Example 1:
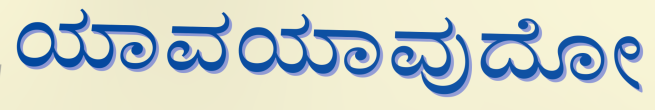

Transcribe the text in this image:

ಯಾವಯಾವುದೋ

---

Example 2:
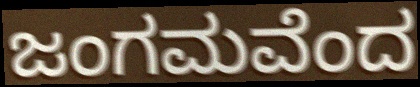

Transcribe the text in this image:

ಜಂಗಮವೆಂದ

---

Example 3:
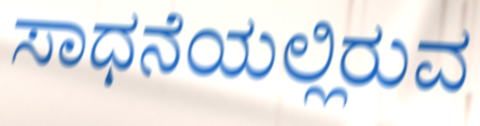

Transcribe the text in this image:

ಸಾಧನೆಯಲ್ಲಿರುವ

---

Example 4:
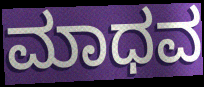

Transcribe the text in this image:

ಮಾಧವ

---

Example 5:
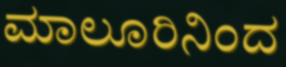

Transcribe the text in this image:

ಮಾಲೂರಿನಿಂದ